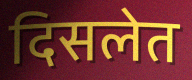
दिसलेत